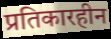
प्रतिकारहीन